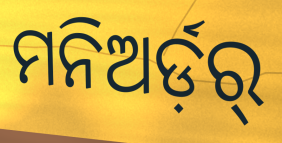
ମନିଅର୍ଡ଼ର୍